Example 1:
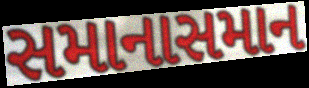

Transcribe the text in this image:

સમાનાસમાન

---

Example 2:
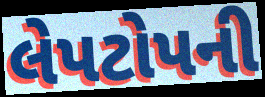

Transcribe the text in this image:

લેપટોપની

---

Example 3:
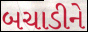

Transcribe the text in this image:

બચાડીને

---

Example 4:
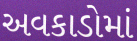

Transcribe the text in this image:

અવકાડોમાં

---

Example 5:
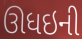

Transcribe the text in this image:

ઊધઇની